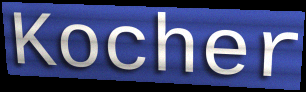
Kocher